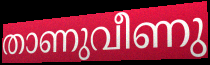
താണുവീണു